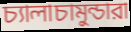
চ্যালাচামুন্ডারা